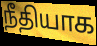
நீதியாக